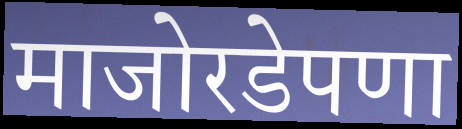
माजोरडेपणा